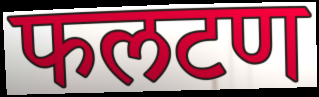
फलटण